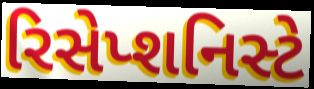
રિસેપ્શનિસ્ટે